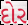
દોર